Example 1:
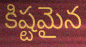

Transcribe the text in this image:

కిష్టమైన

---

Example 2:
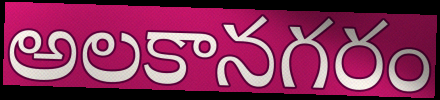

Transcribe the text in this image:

అలకానగరం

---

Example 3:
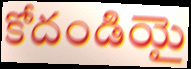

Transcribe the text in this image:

కోదండియై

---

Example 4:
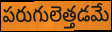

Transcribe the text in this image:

పరుగులెత్తడమే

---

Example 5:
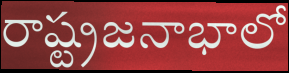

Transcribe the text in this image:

రాష్ట్రజనాభాలో